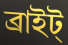
ব্রাইট্